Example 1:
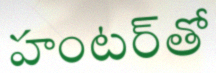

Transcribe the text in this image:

హంటర్‌తో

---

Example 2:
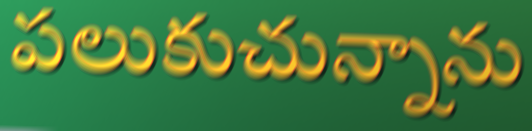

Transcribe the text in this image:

పలుకుచున్నాను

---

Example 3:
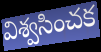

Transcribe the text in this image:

విశ్వసించక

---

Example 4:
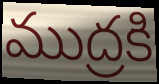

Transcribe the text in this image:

ముద్రకి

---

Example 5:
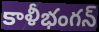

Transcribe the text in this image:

కాళీభంగన్